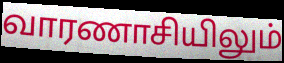
வாரணாசியிலும்